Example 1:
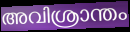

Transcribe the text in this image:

അവിശ്രാന്തം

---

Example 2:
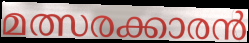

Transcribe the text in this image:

മത്സരക്കാരൻ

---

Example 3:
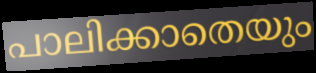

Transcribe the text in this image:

പാലിക്കാതെയും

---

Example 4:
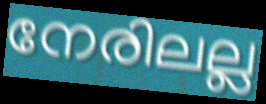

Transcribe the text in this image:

നേരിലല്ല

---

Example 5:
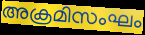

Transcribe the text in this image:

അക്രമിസംഘം